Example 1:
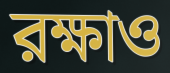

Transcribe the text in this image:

রক্ষাও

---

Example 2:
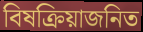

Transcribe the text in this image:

বিষক্রিয়াজনিত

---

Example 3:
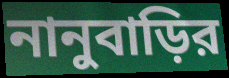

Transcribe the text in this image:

নানুবাড়ির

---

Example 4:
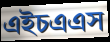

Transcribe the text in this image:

এইচএএস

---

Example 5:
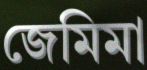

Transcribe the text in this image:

জেমিমা